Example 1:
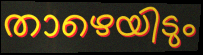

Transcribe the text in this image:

താഴെയിടും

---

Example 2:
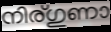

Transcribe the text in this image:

നിര്ഗുണാ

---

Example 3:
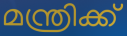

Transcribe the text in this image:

മന്ത്രിക്ക്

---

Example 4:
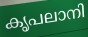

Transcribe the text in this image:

കൃപലാനി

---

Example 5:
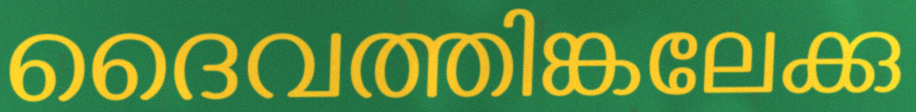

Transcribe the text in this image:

ദൈവത്തിങ്കലേക്കു